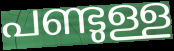
പണ്ടുള്ള